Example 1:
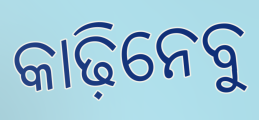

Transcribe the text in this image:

କାଢ଼ିନେବୁ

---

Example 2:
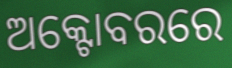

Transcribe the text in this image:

ଅକ୍ଟୋବରରେ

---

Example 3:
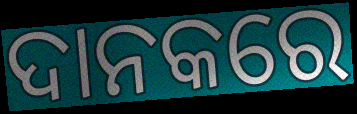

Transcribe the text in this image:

ଦାନକରେ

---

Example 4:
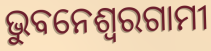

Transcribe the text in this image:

ଭୁବନେଶ୍ୱରଗାମୀ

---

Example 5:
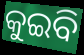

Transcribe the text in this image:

କୁଇବି